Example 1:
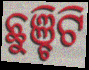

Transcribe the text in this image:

ଛୁଞ୍ଚିଟି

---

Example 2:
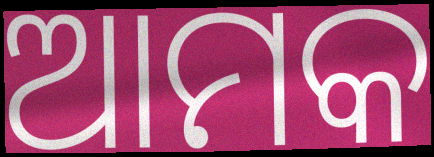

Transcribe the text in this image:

ଆମକ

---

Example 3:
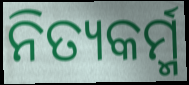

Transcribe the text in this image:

ନିତ୍ୟକର୍ମ୍ମ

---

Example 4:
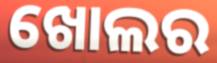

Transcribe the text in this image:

ଖୋଲର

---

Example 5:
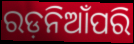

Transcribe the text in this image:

ରଡ଼ନିଆଁପରି